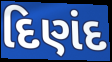
દિણંદ